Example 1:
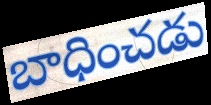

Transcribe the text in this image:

బాధించడు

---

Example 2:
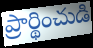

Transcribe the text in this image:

ప్రార్థించుడి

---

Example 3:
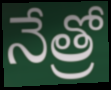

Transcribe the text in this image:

నేత్రో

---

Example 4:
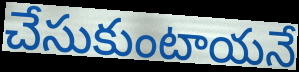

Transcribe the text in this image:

చేసుకుంటాయనే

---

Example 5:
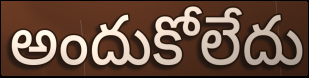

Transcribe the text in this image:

అందుకోలేదు